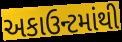
અકાઉન્ટમાંથી